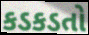
કડકડતો